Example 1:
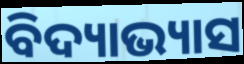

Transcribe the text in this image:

ବିଦ୍ୟାଭ୍ୟାସ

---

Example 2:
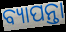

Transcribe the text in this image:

ବ୍ୟାପନ୍ତା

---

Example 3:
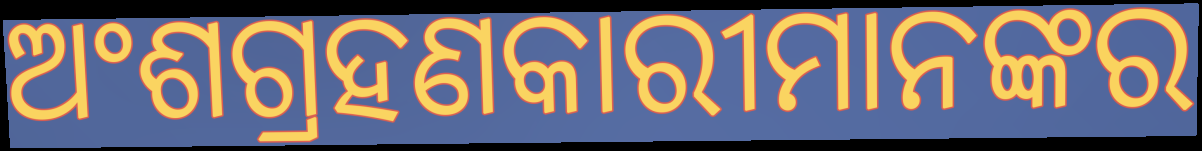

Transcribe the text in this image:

ଅଂଶଗ୍ରହଣକାରୀମାନଙ୍କର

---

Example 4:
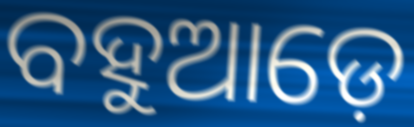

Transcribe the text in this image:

ବହୁଆଡ଼େ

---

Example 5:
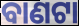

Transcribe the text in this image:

ବାଣଟା